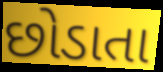
છોડાતા